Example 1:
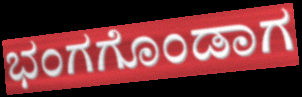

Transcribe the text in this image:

ಭಂಗಗೊಂಡಾಗ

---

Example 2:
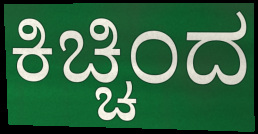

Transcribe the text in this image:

ಕಿಚ್ಚಿಂದ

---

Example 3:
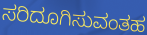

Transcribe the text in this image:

ಸರಿದೂಗಿಸುವಂತಹ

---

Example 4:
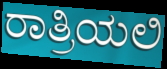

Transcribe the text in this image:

ರಾತ್ರಿಯಲಿ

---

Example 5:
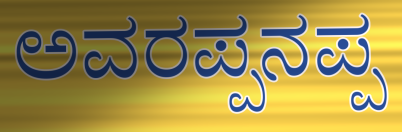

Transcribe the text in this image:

ಅವರಪ್ಪನಪ್ಪ